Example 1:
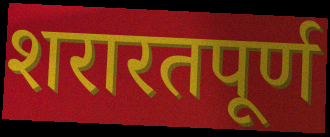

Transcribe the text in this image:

शरारतपूर्ण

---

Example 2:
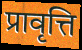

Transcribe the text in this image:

प्रावृत्ति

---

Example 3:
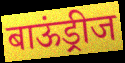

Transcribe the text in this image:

बाऊंड्रीज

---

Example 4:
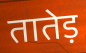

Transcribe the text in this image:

तातेड़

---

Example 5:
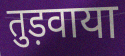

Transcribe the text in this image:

तुड़वाया